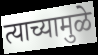
त्याच्यामुळे